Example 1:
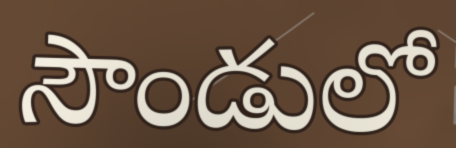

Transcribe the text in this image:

సౌండులో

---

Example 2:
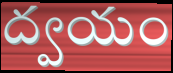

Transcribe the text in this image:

ద్వయం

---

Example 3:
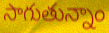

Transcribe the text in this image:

సాగుతున్నాం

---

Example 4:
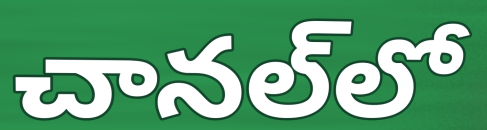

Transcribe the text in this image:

చానల్‌లో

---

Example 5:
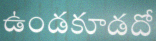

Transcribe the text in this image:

ఉండకూడదో